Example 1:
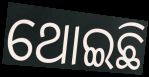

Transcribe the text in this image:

ଥୋଇଛି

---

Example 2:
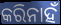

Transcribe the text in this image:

କରିନାହଁ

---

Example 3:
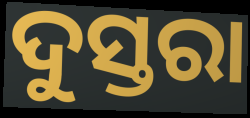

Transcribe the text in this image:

ଦୁସ୍ତରା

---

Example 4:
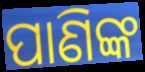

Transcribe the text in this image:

ପାଣିଙ୍କ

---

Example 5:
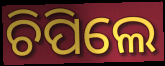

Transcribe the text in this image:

ଚିପିଲେ